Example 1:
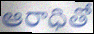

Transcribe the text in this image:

ఆరాధితో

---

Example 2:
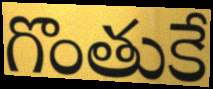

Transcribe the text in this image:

గొంతుకే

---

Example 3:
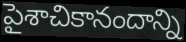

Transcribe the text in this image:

పైశాచికానందాన్ని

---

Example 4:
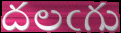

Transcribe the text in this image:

దలఁగు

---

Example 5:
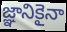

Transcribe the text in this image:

జ్ఞానికైనా